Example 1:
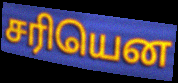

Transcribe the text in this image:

சரியென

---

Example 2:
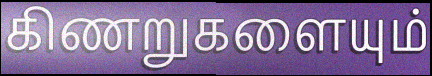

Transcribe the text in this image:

கிணறுகளையும்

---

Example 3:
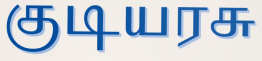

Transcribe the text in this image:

குடியரசு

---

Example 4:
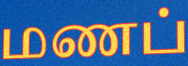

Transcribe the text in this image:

மணப்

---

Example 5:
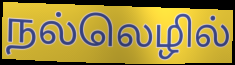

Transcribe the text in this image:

நல்லெழில்